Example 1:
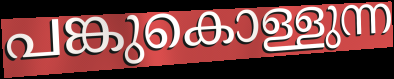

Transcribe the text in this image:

പങ്കുകൊള്ളുന്ന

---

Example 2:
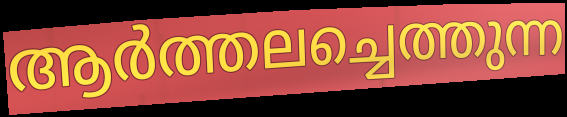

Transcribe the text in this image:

ആർത്തലച്ചെത്തുന്ന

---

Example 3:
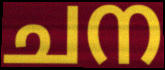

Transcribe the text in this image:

ചന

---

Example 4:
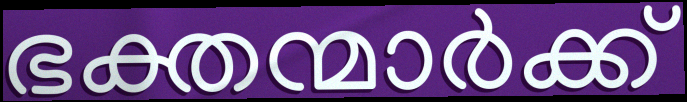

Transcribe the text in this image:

ഭക്തന്മാർക്ക്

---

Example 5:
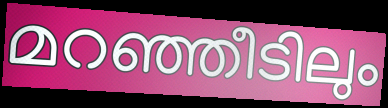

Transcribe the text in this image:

മറഞ്ഞീടിലും